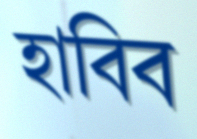
হাবিব